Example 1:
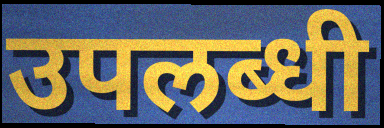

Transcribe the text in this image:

उपलब्धी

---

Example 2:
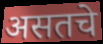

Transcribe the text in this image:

असतचे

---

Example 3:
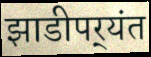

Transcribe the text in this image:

झाडीपर्यंत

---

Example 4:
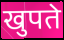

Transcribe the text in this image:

खुपते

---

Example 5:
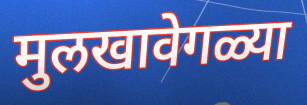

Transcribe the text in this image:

मुलखावेगळ्या